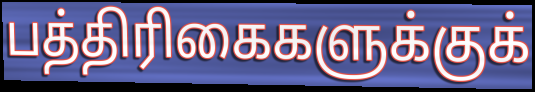
பத்திரிகைகளுக்குக்